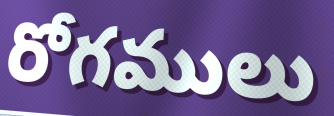
రోగములు